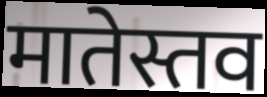
मातेस्तव